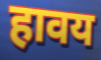
हावय